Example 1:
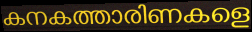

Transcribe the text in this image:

കനകത്താരിണകളെ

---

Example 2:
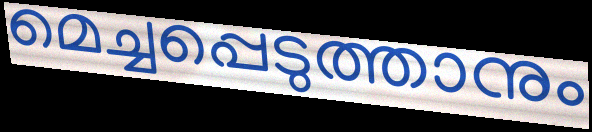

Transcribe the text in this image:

മെച്ചപ്പെടുത്താനും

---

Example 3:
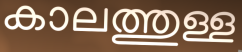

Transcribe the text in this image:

കാലത്തുള്ള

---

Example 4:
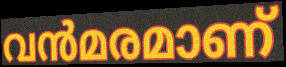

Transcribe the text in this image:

വൻമരമാണ്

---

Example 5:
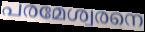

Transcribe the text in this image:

പരമേശ്വരനെ